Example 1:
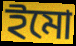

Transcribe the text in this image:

ইমো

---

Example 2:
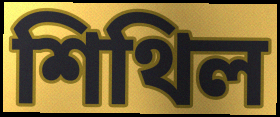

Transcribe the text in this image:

শিথিল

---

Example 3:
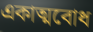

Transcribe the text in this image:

একাত্মবোধ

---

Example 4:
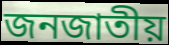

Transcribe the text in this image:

জনজাতীয়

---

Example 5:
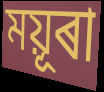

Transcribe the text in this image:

ময়ূৰা